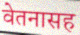
वेतनासह